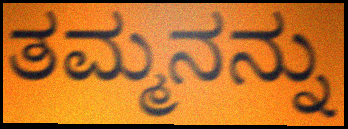
ತಮ್ಮನನ್ನು